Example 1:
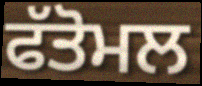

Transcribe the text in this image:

ਫੱਤੋਮਲ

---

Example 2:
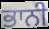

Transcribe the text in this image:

ਭਾਨੀ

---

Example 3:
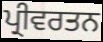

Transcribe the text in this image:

ਪ੍ਰੀਵਰਤਨ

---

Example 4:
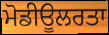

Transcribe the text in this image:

ਮੋਡੀਊਲਰਤਾ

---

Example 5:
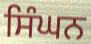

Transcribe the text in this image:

ਸਿੰਘਨ